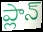
ప్లాన్